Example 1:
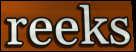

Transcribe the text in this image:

reeks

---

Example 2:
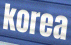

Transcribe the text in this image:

korea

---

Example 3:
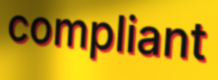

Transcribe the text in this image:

compliant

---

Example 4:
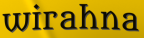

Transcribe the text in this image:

wirahna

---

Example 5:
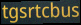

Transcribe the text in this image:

tgsrtcbus